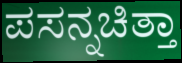
ಪಸನ್ನಚಿತ್ತಾ